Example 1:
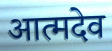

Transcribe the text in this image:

आत्मदेव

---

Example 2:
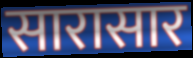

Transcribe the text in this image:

सारासार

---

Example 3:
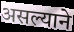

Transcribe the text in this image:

असल्याने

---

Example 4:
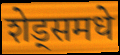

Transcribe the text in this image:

शेड्समधे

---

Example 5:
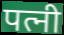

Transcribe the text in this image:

पत्‍नी